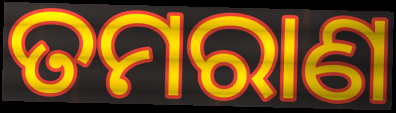
ତମରାଣ